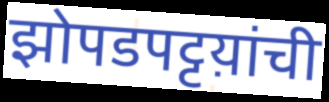
झोपडपट्टय़ांची